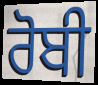
ਰੋਬੀ